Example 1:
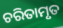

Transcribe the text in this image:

ଚରିତାମୃତ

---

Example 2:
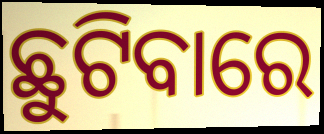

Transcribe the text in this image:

ଛୁଟିବାରେ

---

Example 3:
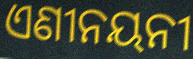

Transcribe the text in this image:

ଏଣୀନୟନୀ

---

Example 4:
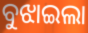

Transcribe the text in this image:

ବୁଝାଇଲା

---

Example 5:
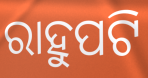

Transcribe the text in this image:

ରାହୁପଟି